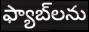
ఫ్యాబ్‌లను